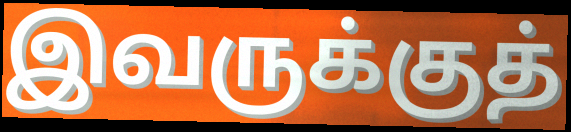
இவருக்குத்